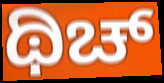
ಥಿಚ್